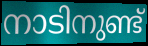
നാടിനുണ്ട്